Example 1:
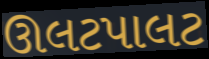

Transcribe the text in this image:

ઊલટપાલટ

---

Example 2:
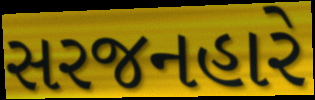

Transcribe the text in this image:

સરજનહારે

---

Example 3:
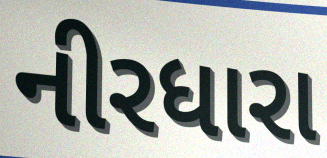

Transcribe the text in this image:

નીરધારા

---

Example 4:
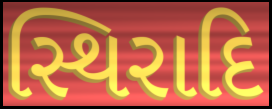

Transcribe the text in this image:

સ્થિરાદિ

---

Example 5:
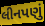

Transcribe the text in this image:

લીનપણું